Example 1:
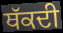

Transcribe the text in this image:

ਥੱਕਦੀ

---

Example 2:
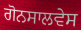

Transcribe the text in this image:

ਗੋਨਸਾਲਵੇਸ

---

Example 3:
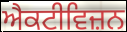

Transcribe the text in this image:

ਐਕਟੀਵਿਜ਼ਨ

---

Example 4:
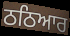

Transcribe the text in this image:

ਠਠਿਆਰ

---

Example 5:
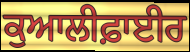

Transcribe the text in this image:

ਕੁਆਲੀਫ਼ਾਈਰ